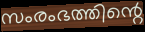
സംരംഭത്തിന്റെ